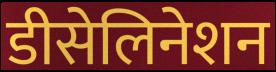
डीसेलिनेशन